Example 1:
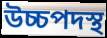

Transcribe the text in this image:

উচ্চপদস্থ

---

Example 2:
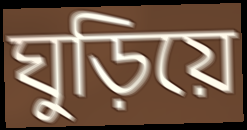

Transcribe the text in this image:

ঘুড়িয়ে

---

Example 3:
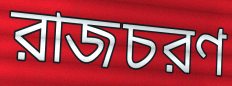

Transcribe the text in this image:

রাজচরণ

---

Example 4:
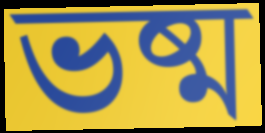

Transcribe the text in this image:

ভষ্ম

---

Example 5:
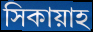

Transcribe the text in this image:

সিকায়াহ